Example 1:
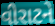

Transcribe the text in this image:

વીરાટને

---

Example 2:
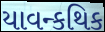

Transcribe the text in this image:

યાવન્કથિક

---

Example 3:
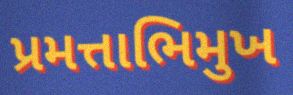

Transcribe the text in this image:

પ્રમત્તાભિમુખ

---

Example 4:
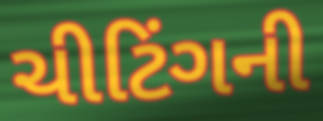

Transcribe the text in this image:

ચીટિંગની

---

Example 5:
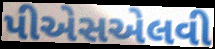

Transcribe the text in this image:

પીએસએલવી